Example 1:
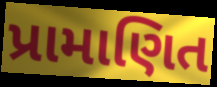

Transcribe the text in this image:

પ્રામાણિત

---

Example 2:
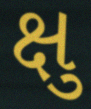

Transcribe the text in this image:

ક્ષુ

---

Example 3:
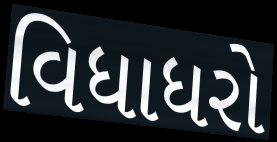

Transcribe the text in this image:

વિધાધરો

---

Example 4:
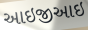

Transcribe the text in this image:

આઇજીઆઇ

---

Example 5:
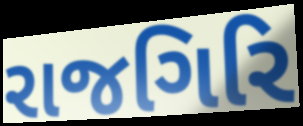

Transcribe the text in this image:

રાજગિરિ